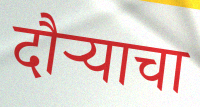
दौऱ्याचा